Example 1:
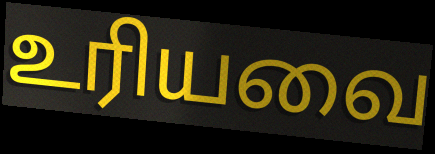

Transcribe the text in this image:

உரியவை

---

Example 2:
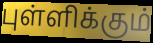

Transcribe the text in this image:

புள்ளிக்கும்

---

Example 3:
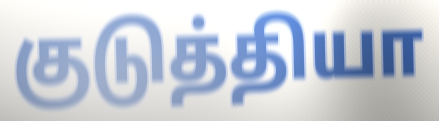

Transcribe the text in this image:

குடுத்தியா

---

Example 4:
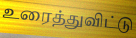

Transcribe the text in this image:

உரைத்துவிட்டு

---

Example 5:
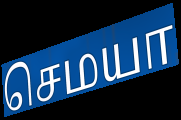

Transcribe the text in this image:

செமயா